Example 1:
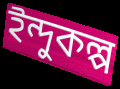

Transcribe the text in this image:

ইন্দুকল্প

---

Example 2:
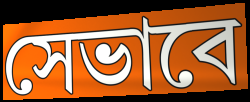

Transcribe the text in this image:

সেভাবে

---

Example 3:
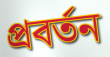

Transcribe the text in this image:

প্ৰবৰ্তন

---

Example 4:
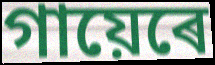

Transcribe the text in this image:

গায়েৰে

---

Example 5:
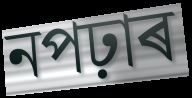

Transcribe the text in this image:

নপঢ়াৰ